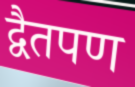
द्वैतपण